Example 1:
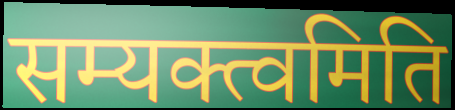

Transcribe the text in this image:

सम्यक्त्वमिति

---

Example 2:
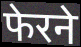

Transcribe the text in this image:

फेरने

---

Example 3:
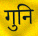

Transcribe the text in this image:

गुनि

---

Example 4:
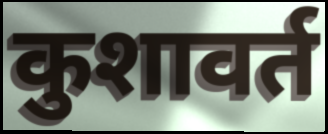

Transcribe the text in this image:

कुशावर्त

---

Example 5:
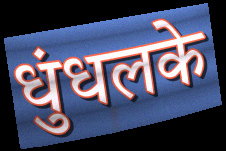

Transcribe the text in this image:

धुंधलके